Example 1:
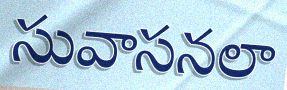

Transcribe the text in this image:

సువాసనలా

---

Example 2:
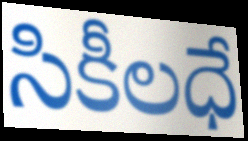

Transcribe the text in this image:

సికీలధే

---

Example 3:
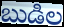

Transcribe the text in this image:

బుడిల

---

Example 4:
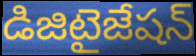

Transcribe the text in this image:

డిజిటైజేషన్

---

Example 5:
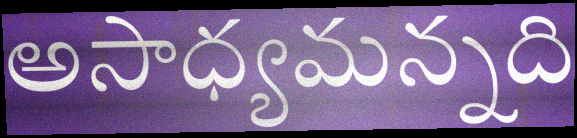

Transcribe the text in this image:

అసాధ్యమన్నది